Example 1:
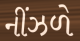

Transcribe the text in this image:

નીંઝળે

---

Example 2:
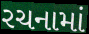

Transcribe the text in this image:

રચનામાં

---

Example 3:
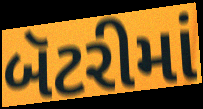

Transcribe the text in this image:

બૅટરીમાં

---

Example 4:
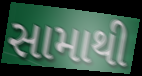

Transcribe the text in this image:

સામાથી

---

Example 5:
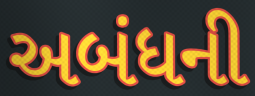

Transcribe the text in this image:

અબંધની